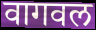
वागवल